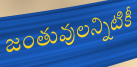
జంతువులన్నిటికీ